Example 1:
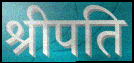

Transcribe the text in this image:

श्रीपति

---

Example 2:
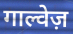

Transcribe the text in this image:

गाल्वेज़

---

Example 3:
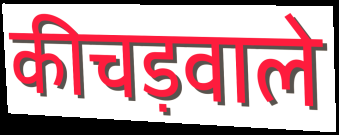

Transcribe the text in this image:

कीचड़वाले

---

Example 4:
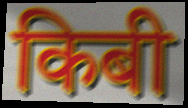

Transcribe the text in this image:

किबी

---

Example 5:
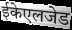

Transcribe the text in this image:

ईकेएलजेड